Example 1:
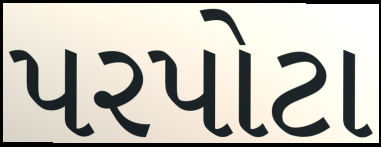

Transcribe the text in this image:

પરપોટા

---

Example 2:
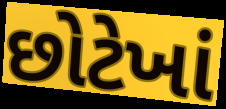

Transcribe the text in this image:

છોટેખાં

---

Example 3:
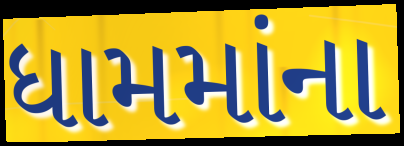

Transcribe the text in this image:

ધામમાંના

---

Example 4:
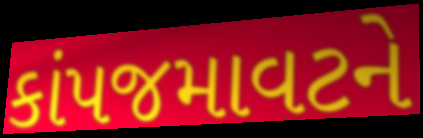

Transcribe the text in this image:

કાંપજમાવટને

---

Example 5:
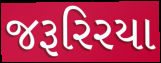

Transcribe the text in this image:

જરૂરિરયા